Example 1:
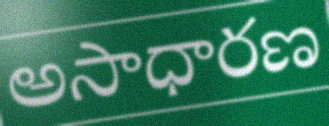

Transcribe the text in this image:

అసాధారణ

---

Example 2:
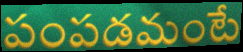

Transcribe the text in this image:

పంపడమంటే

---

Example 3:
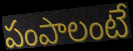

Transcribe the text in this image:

పంపాలంటే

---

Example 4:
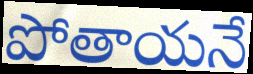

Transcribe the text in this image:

పోతాయనే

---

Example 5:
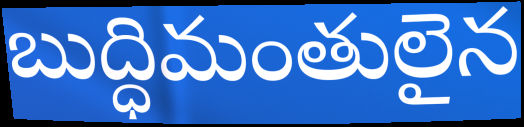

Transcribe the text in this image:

బుద్ధిమంతులైన